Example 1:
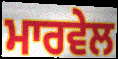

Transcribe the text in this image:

ਮਾਰਵੇਲ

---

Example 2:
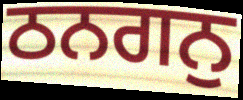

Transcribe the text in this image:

ਠਨਗਨੁ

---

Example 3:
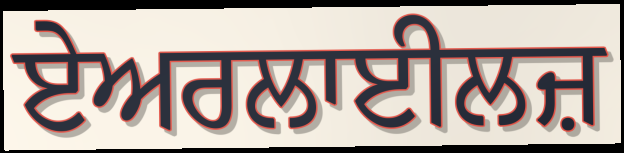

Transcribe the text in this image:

ਏਅਰਲਾਈਲਜ਼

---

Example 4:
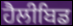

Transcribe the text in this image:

ਹੈਲੀਬਿਡ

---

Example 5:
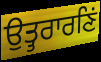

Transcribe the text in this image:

ਉਤ੍ਤਰਾਰਣਿਂ